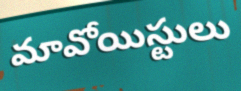
మావోయిస్టులు